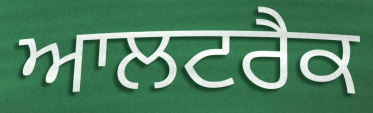
ਆਲਟਰੈਕ